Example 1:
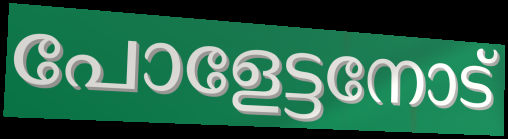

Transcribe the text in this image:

പോളേട്ടനോട്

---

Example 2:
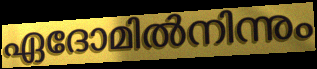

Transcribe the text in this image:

ഏദോമിൽനിന്നും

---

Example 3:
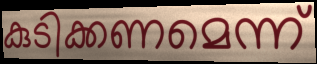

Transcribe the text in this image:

കുടിക്കണമെന്ന്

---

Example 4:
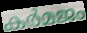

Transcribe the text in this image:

കർമജം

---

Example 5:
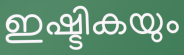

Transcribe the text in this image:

ഇഷ്ടികയും